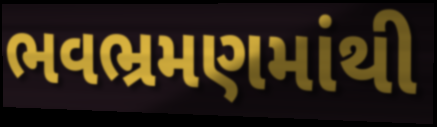
ભવભ્રમણમાંથી